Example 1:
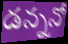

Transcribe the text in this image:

డన్ననో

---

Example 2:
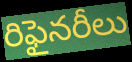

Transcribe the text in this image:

రిఫైనరీలు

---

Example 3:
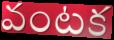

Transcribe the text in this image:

వంటక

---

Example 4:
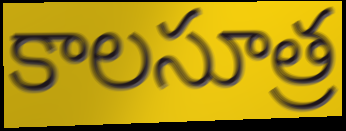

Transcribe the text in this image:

కాలసూత్ర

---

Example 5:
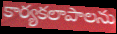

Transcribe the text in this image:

కార్యకలాపాలను